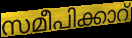
സമീപിക്കാറ്